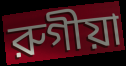
ৰুগীয়া